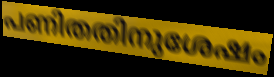
പണിതതിനുശേഷം